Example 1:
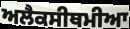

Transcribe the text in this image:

ਅਲੈਕਸੀਥਮੀਆ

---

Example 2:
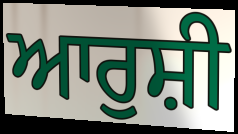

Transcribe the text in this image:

ਆਰੁਸ਼ੀ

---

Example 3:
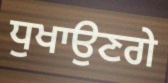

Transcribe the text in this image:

ਧੁਖਾਉਣਗੇ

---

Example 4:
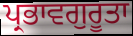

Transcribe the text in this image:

ਪ੍ਰਭਾਵਗੁਰੂਤਾ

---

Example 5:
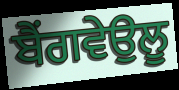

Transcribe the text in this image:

ਬੈਂਗਵੇਉਲੂ